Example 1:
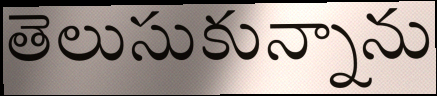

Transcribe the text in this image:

తెలుసుకున్నాను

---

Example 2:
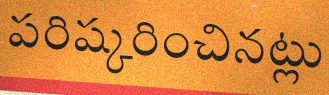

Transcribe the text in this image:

పరిష్కరించినట్లు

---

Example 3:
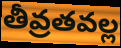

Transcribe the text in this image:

తీవ్రతవల్ల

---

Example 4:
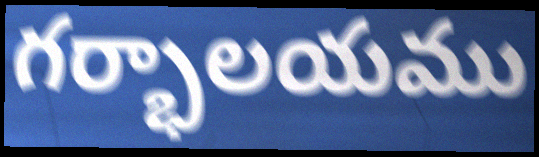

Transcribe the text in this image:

గర్భాలయము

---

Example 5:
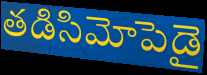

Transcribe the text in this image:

తడిసిమోపెడై